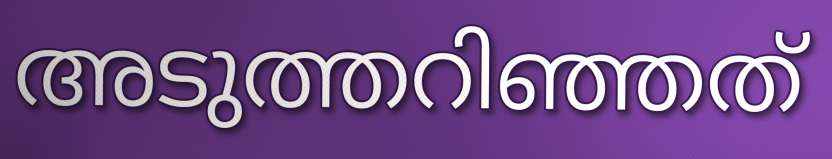
അടുത്തറിഞ്ഞത്